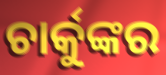
ଚାର୍କୁଙ୍କର